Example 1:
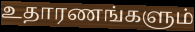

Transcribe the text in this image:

உதாரணங்களும்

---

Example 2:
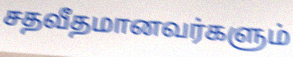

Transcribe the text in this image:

சதவீதமானவர்களும்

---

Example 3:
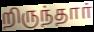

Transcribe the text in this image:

றிருந்தார்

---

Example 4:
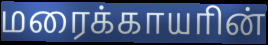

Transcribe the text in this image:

மரைக்காயரின்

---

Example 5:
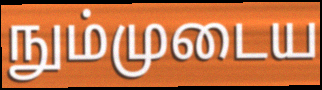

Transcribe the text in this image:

நும்முடைய